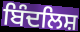
ਬਿੰਦਲਿਸ਼